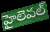
హైలెవల్